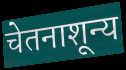
चेतनाशून्य